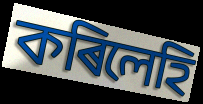
কৰিলেহি